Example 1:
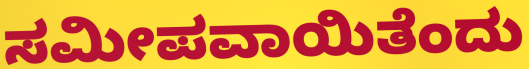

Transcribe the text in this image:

ಸಮೀಪವಾಯಿತೆಂದು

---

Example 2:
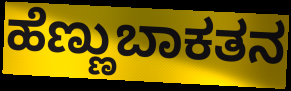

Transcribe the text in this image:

ಹೆಣ್ಣುಬಾಕತನ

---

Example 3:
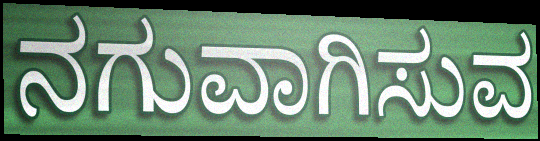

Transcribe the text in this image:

ನಗುವಾಗಿಸುವ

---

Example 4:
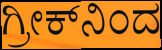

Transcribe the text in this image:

ಗ್ರೀಕ್‌ನಿಂದ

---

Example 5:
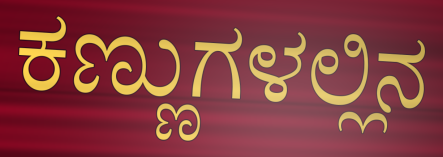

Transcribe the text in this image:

ಕಣ್ಣುಗಳಲ್ಲಿನ